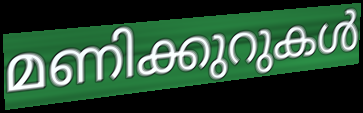
മണിക്കുറുകൾ